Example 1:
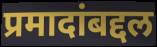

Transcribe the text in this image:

प्रमादांबद्दल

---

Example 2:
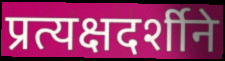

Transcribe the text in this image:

प्रत्यक्षदर्शीने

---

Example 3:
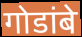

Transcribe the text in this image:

गोडांबे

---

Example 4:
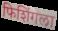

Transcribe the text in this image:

फिशिंगला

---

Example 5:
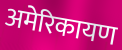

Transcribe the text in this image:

अमेरिकायण